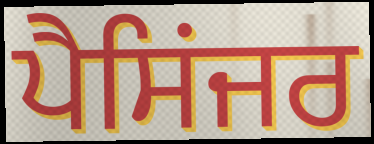
ਪੈਸਿਂਜਰ